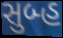
સુબ્હ